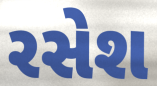
રસેશ